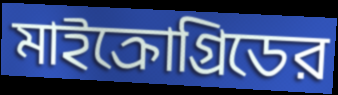
মাইক্রোগ্রিডের